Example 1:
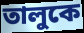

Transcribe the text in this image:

তালুকে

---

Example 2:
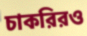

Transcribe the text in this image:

চাকরিরও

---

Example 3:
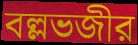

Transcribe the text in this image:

বল্লভজীর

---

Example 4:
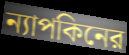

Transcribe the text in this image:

ন্যাপকিনের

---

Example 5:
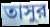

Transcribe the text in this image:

তাসুর